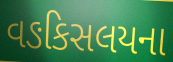
વઙકિસલયના